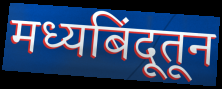
मध्यबिंदूतून